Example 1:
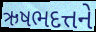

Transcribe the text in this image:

ઋષભદત્તને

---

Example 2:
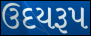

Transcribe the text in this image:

ઉદયરૂપ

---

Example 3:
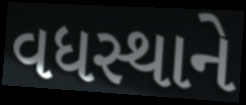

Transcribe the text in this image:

વધસ્થાને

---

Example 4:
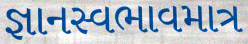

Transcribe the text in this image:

જ્ઞાનસ્વભાવમાત્ર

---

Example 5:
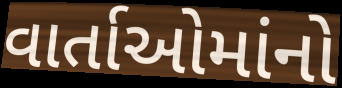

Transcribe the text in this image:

વાર્તાઓમાંનો